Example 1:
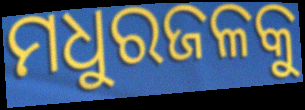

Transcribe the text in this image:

ମଧୁରଜଳକୁ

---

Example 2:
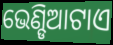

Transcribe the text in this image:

ଭେଣ୍ଡିଆଟାଏ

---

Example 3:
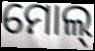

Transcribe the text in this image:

ମୋଲ୍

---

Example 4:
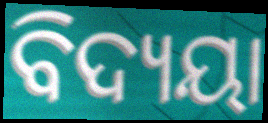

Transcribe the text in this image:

ବିଦ୍ୟୟା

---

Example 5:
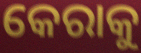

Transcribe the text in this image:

କେରାକୁ